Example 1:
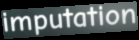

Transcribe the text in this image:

imputation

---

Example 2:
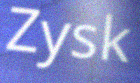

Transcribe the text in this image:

Zysk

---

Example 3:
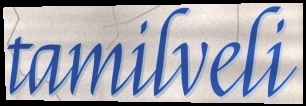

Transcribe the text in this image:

tamilveli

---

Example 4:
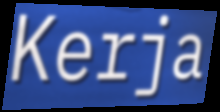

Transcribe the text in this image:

Kerja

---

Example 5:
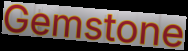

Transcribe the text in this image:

Gemstone